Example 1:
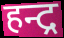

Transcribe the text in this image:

हन्द्र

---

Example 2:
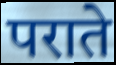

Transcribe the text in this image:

पराते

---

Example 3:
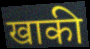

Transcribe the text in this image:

खाकी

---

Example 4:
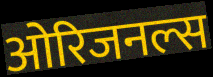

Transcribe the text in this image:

ओरिजनल्स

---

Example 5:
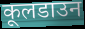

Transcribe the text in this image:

कूलडाउन